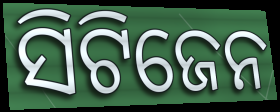
ସିଟିଜେନ